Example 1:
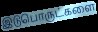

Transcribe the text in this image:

இடுபொருட்களை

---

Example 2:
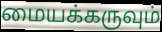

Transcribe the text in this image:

மையக்கருவும்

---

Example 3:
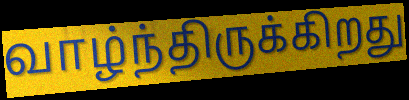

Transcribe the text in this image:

வாழ்ந்திருக்கிறது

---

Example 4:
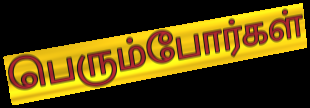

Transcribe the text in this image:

பெரும்போர்கள்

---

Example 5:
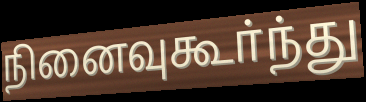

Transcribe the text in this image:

நினைவுகூர்ந்து